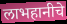
लाभहानीचे